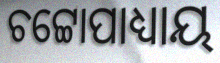
ଚଟ୍ଟୋପାଧ୍ୟାୟ